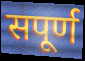
सपूर्ण